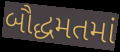
બૌદ્ધમતમાં